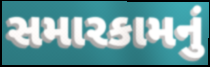
સમારકામનું